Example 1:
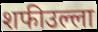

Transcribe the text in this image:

शफीउल्ला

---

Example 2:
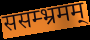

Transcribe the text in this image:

ससम्भ्रमम्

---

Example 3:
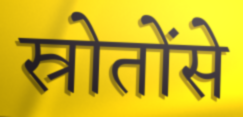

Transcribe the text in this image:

स्रोतोंसे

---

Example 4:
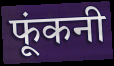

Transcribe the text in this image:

फूंकनी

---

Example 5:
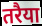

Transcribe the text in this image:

तरैया